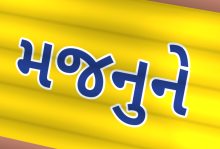
મજનુને